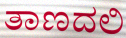
ತಾಣದಲಿ